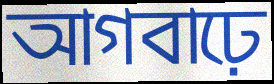
আগবাঢ়ে